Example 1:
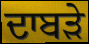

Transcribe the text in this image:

ਦਾਬੜੇ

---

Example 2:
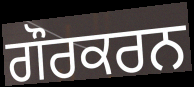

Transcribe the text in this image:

ਗੌਰਕਰਨ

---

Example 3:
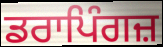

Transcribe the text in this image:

ਡਰਾਪਿੰਗਜ਼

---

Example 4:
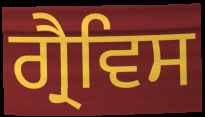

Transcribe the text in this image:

ਗ੍ਰੈਵਿਸ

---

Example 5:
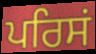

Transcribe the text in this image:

ਪਰਿਸਂ